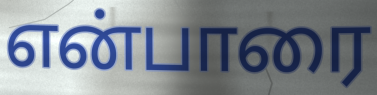
என்பாரை